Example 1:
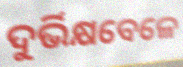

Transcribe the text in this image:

ଦୁର୍ଭିକ୍ଷବେଳେ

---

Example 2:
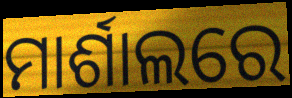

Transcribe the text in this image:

ମାର୍ଶାଲରେ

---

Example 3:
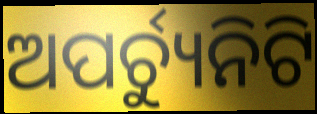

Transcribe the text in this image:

ଅପର୍ଚ୍ୟୁନିଟି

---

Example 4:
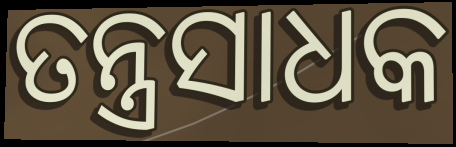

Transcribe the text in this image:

ତନ୍ତ୍ରସାଧକ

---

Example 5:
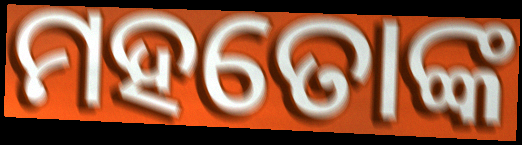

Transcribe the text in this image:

ମହତୋଙ୍କ